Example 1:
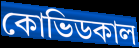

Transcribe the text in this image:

কোভিডকাল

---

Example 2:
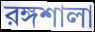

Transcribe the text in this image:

রঙ্গশালা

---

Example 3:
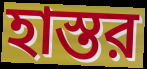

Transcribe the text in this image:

হাস্তর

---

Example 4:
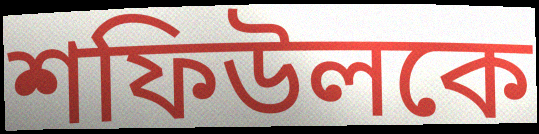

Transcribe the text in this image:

শফিউলকে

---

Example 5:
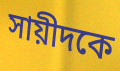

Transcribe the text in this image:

সায়ীদকে